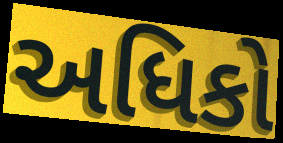
અધિકો